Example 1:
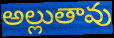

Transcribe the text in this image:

అల్లుతావు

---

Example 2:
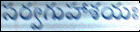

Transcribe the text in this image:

సర్వగుహాశయః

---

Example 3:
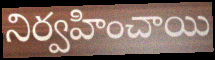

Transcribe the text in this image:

నిర్వహించాయి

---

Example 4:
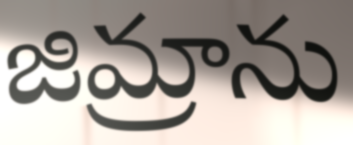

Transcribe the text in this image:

జిమ్రాను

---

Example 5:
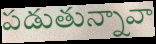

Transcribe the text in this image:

పడుతున్నావా